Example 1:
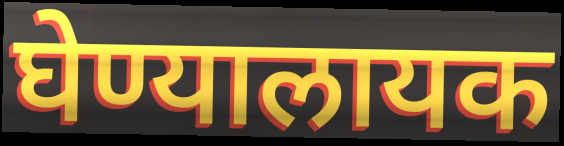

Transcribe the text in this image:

घेण्यालायक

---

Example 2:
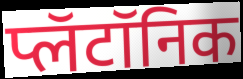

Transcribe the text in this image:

प्लॅटॉनिक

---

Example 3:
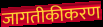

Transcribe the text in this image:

जागतीकीकरण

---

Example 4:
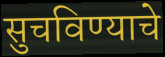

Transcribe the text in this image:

सुचविण्याचे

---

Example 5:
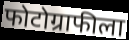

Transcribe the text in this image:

फोटोग्राफीला